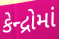
કેન્દ્રોમાં